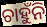
ଚାହୁଁନି